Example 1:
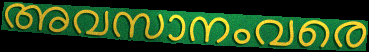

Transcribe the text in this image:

അവസാനംവരെ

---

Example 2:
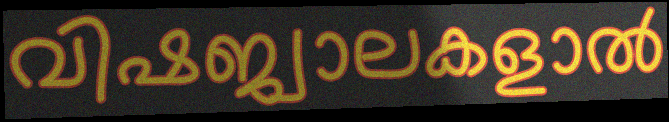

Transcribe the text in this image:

വിഷജ്വാലകളാൽ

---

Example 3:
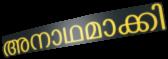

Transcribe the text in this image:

അനാഥമാക്കി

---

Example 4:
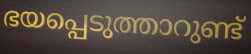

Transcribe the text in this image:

ഭയപ്പെടുത്താറുണ്ട്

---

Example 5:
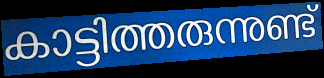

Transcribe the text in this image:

കാട്ടിത്തരുന്നുണ്ട്